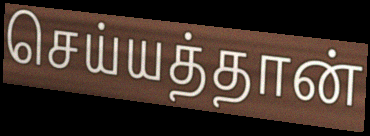
செய்யத்தான்